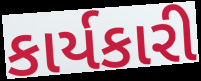
કાર્યકારી